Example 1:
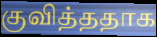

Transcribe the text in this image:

குவித்ததாக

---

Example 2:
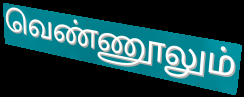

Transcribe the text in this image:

வெண்ணூலும்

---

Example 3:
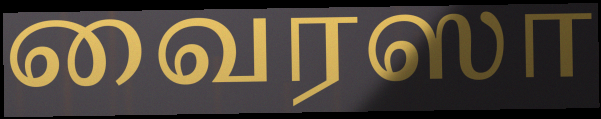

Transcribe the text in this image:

வைரஸா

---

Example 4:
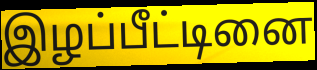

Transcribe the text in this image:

இழப்பீட்டினை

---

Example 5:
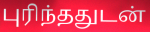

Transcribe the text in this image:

புரிந்ததுடன்